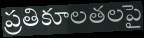
ప్రతికూలతలపై